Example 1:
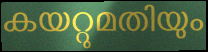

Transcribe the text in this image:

കയറ്റുമതിയും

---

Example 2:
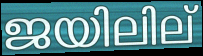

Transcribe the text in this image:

ജയിലില്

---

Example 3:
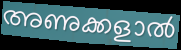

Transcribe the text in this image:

അണുക്കളാൽ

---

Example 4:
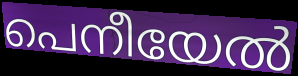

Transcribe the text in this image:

പെനീയേൽ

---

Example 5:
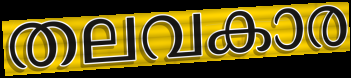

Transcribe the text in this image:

തലവകാര